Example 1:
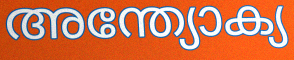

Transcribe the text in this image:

അന്ത്യോക്യ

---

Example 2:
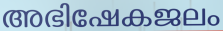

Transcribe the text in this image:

അഭിഷേകജലം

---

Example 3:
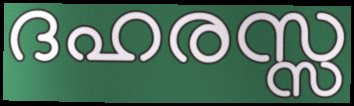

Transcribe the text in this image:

ദഹരസ്സ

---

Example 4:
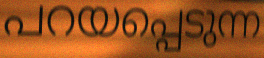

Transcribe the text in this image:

പറയപ്പെടുന്ന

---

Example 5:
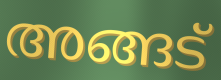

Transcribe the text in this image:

അങ്ങട്